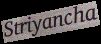
Striyancha